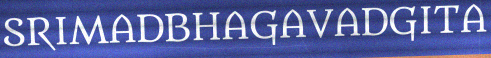
SRIMADBHAGAVADGITA